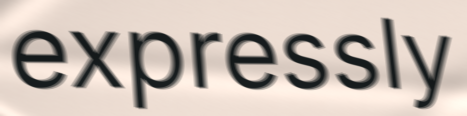
expressly